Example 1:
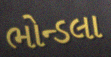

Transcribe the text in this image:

ભોન્ડલા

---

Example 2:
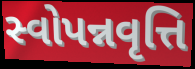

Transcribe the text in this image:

સ્વોપન્નવૃત્તિ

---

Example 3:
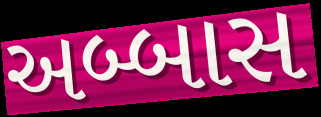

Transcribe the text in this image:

અબ્બાસ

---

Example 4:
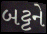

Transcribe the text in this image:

બટ્ટને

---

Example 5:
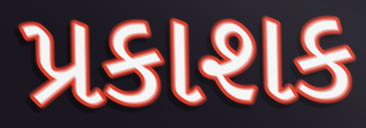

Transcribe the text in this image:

પ્રકાશક